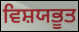
ਵਿਸ਼ਯਭੂਤ